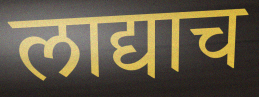
लाद्याच